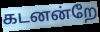
கடனன்றே